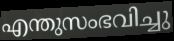
എന്തുസംഭവിച്ചു